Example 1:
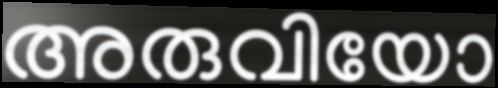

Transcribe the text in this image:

അരുവിയോ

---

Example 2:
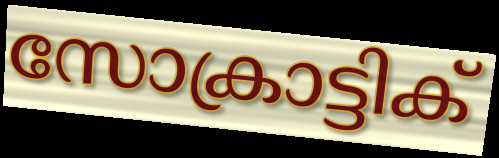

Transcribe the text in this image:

സോക്രാട്ടിക്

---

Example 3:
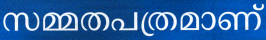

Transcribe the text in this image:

സമ്മതപത്രമാണ്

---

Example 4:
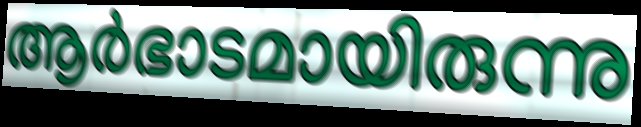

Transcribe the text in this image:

ആർഭാടമായിരുന്നു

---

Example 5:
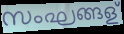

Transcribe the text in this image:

സംഘങ്ങള്